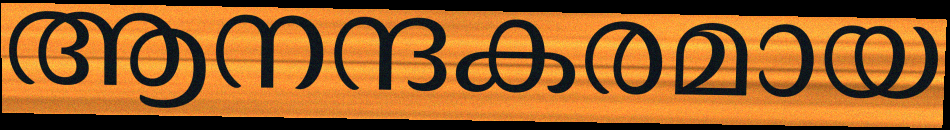
ആനന്ദകരമായ